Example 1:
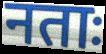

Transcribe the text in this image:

नताः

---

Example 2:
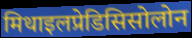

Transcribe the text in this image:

मिथाइलप्रेडिसिसोलोन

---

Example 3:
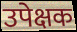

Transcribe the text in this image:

उपेक्षक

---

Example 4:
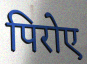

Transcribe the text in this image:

पिरोए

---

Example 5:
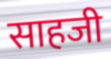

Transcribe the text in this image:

साहजी